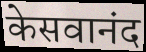
केसवानंद